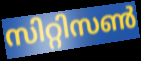
സിറ്റിസൺ